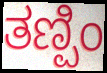
ತಣ್ಪಿಂ